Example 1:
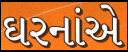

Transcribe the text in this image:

ઘરનાંએ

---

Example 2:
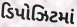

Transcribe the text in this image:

ડિપોઝિટમાં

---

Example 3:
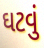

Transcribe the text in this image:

ઘટવું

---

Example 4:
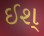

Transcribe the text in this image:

ઈશ્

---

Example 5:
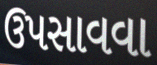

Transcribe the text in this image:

ઉપસાવવા